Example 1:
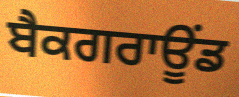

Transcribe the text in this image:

ਬੈਕਗਰਾਊਂਡ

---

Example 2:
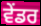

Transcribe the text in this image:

ਵੇਂਡਰ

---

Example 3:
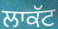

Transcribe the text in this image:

ਲਾਕੱਟ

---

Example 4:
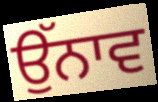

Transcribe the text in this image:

ਉੱਨਾਵ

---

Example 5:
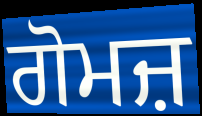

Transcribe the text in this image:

ਗੋਮਜ਼